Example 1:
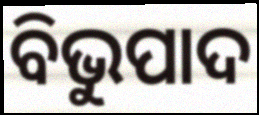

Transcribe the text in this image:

ବିଭୁପାଦ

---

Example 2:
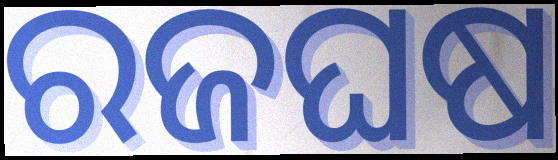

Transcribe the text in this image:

ରଜଘଷ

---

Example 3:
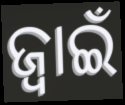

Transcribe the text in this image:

ଜ୍ଵାଇଁ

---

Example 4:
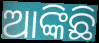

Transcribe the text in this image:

ଆଙ୍କିଛି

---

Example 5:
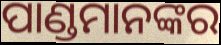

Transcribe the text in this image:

ପାଣ୍ଡମାନଙ୍କର